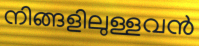
നിങ്ങളിലുള്ളവൻ